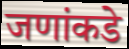
जणांकडे